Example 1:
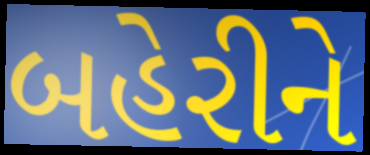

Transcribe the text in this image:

બહેરીને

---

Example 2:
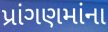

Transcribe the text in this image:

પ્રાંગણમાંના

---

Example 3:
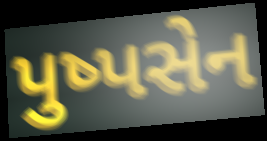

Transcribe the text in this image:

પુષ્પસેન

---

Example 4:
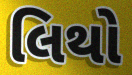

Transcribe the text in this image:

લિથો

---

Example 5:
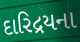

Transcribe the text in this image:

દારિદ્રયના